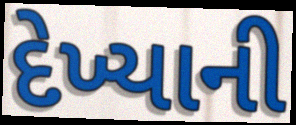
દેખ્યાની